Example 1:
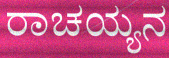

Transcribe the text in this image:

ರಾಚಯ್ಯನ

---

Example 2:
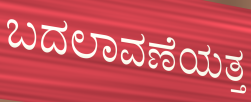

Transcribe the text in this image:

ಬದಲಾವಣೆಯತ್ತ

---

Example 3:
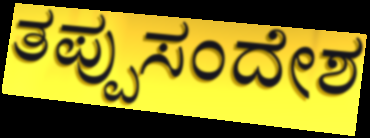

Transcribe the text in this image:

ತಪ್ಪುಸಂದೇಶ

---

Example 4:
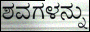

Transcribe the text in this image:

ಶವಗಳನ್ನು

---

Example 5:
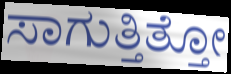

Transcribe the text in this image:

ಸಾಗುತ್ತಿತ್ತೋ